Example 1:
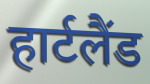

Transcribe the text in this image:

हार्टलैंड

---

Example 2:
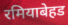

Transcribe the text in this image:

रमियाबेहड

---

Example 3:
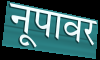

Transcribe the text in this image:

नूपावर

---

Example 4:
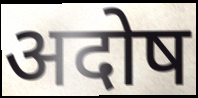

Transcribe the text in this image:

अदोष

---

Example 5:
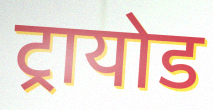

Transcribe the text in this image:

ट्रायोड